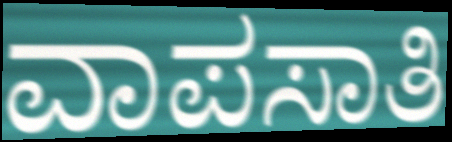
ವಾಪಸಾತಿ